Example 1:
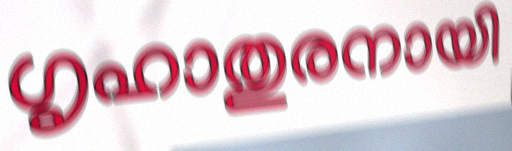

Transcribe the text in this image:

ഗൃഹാതുരനായി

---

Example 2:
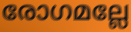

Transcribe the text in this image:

രോഗമല്ലേ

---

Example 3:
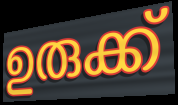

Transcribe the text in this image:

ഉരുക്ക്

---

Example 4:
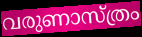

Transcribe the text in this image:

വരുണാസ്ത്രം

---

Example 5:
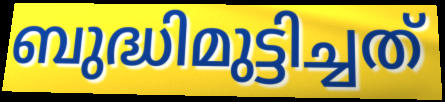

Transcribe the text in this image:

ബുദ്ധിമുട്ടിച്ചത്